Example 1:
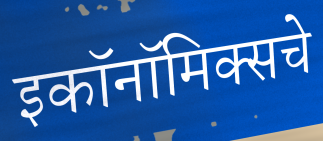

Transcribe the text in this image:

इकॉनॉमिक्सचे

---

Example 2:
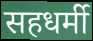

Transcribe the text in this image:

सहधर्मी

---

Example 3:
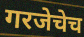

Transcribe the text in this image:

गरजेचेच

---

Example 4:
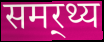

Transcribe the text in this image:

समर्थ्य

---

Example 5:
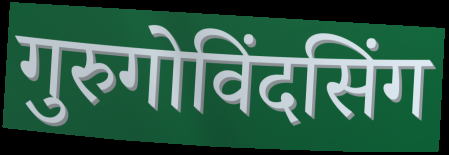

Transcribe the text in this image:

गुरुगोविंदसिंग